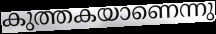
കുത്തകയാണെന്നു